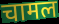
चामल